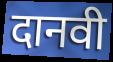
दानवी